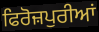
ਫਿਰੋਜ਼ਪੁਰੀਆਂ